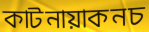
কাটনায়াকনচ